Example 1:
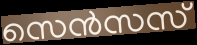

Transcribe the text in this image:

സെൻസസ്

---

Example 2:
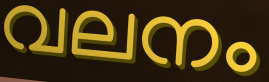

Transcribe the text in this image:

വലനം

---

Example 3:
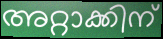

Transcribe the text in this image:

അറ്റാക്കിന്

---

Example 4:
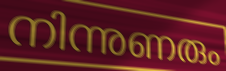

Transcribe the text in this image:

നിന്നുണരും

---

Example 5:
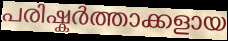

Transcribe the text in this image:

പരിഷ്കർത്താക്കളായ